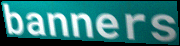
banners